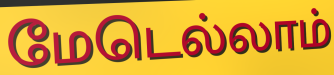
மேடெல்லாம்